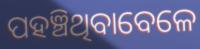
ପହଞ୍ଚିଥିବାବେଳେ